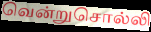
வென்றுசொல்லி